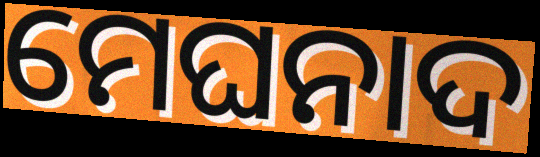
ମେଘନାଦ